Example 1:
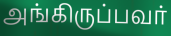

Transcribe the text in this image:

அங்கிருப்பவர்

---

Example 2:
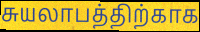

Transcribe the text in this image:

சுயலாபத்திற்காக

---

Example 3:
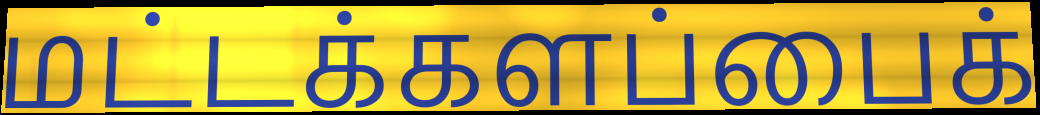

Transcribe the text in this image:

மட்டக்களப்பைக்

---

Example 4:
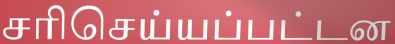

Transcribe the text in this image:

சரிசெய்யப்பட்டன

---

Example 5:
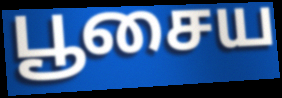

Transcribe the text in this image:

பூசைய